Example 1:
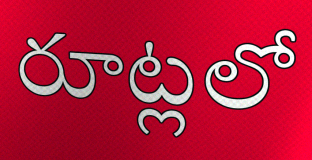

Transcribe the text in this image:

రూట్లలో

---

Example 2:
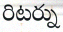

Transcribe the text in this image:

రిటర్ను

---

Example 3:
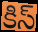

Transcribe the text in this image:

కిస్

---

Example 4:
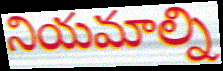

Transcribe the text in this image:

నియమాల్ని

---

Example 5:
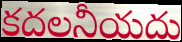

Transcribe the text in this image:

కదలనీయదు